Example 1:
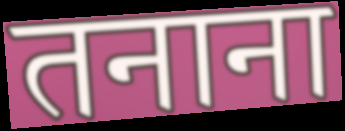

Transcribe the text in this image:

तनाना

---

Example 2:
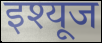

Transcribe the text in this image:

इश्यूज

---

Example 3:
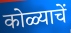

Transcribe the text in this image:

कोळ्याचें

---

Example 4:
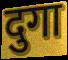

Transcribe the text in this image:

दुगा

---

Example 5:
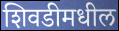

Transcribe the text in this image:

शिवडीमधील